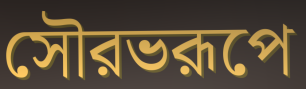
সৌরভরূপে